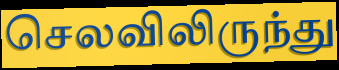
செலவிலிருந்து